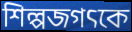
শিল্পজগৎকে